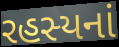
રહસ્યનાં